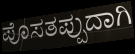
ಪೊಸತಪ್ಪುದಾಗಿ